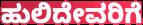
ಹುಲಿದೇವರಿಗೆ